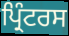
ਪ੍ਰਿੰਟਰਸ